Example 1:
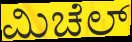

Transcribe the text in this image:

ಮಿಚೆಲ್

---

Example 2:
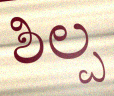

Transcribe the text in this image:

ಶಿಲ್ಪ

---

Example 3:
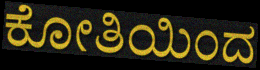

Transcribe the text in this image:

ಕೋತಿಯಿಂದ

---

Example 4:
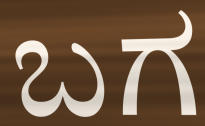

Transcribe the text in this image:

ಬಗ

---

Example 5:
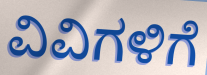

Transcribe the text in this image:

ವಿವಿಗಳಿಗೆ